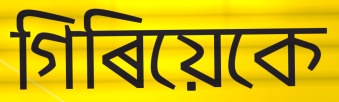
গিৰিয়েকে